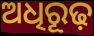
ଅଧିରୂଢ଼